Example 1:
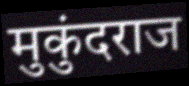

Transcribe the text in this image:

मुकुंदराज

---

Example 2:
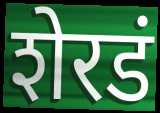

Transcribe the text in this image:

शेरडं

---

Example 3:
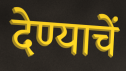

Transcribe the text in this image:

देण्याचें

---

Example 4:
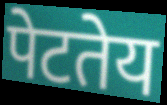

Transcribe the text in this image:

पेटतेय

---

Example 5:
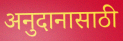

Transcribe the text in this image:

अनुदानासाठी